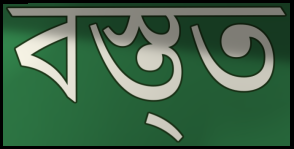
বস্ত্ত